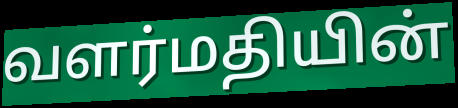
வளர்மதியின்